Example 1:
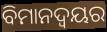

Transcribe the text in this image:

ବିମାନଦ୍ବୟର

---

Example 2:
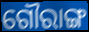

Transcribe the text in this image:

ଗୌରାଙ୍ଗ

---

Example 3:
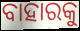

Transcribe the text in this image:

ବାହାରକୁ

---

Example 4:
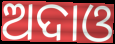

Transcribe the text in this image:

ଅଦାଓ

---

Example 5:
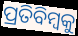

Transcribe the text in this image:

ପ୍ରତିବିମ୍ବକୁ